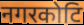
नगरकोटि